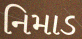
નિમાડ